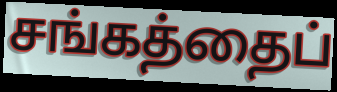
சங்கத்தைப்